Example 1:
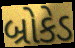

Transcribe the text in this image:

બ્રોકેડ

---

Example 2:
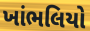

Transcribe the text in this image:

ખાંભલિયો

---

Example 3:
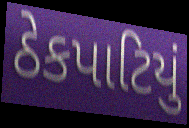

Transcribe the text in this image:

ઠેકપાટિયું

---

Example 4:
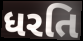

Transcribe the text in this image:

ધરતિ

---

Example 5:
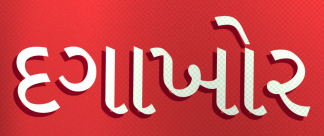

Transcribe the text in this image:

દગાખોર